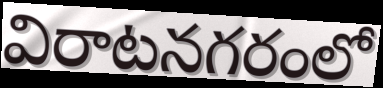
విరాటనగరంలో